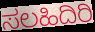
ಸಲಹಿದಿರಿ